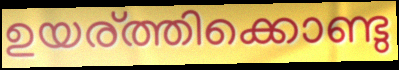
ഉയര്ത്തിക്കൊണ്ടു